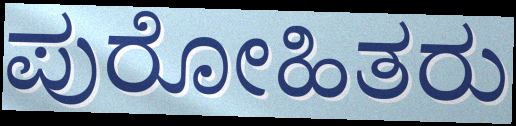
ಪುರೋಹಿತರು